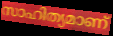
സാഹിത്യമാണ്